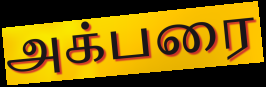
அக்பரை